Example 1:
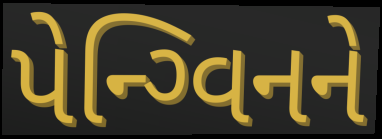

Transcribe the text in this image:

પેન્ગ્વિનને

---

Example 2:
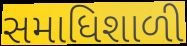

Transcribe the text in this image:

સમાધિશાળી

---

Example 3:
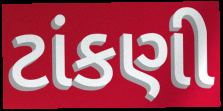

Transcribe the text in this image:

ટાંકણી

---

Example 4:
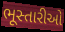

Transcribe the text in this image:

ભૂસ્તારીઓ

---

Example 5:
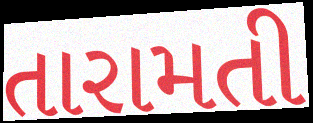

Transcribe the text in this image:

તારામતી